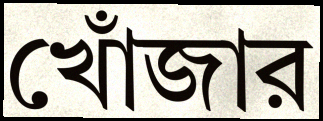
খোঁজার